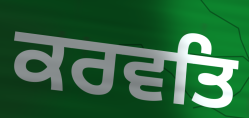
ਕਰਵਤਿ